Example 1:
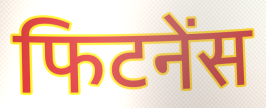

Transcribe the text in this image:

फिटनेंस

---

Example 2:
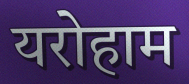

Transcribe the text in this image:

यरोहाम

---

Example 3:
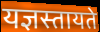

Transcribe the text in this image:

यज्ञस्तायते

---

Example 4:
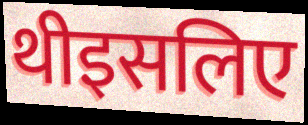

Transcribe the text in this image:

थीइसलिए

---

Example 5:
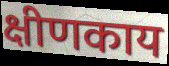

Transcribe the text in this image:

क्षीणकाय